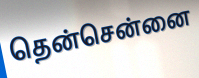
தென்சென்னை